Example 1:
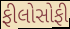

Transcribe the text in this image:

ફીલોસોફી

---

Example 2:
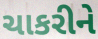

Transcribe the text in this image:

ચાકરીને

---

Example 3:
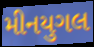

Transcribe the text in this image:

મીનયુગલ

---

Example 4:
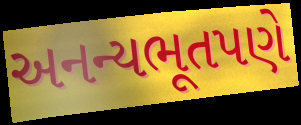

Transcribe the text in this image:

અનન્યભૂતપણે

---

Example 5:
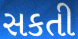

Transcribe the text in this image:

સકતી